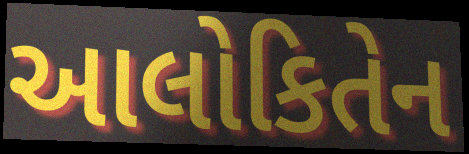
આલોકિતેન